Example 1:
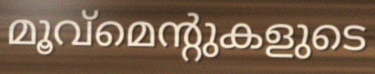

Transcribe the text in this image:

മൂവ്മെന്റുകളുടെ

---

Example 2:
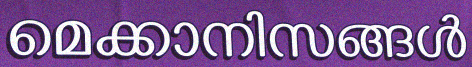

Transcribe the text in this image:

മെക്കാനിസങ്ങൾ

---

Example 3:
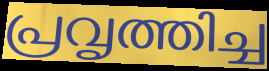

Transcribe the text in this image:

പ്രവൃത്തിച്ച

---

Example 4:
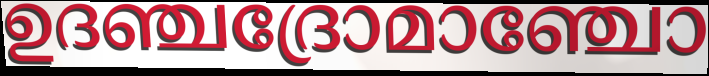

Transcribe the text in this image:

ഉദഞ്ചദ്രോമാഞ്ചോ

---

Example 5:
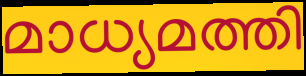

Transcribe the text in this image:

മാധ്യമത്തി